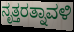
ನೃತ್ತರತ್ನಾವಳಿ